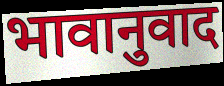
भावानुवाद